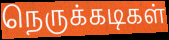
நெருக்கடிகள்